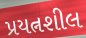
પ્રયત્નશીલ